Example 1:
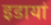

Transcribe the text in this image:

इडायां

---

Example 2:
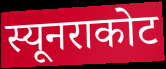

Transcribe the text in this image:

स्यूनराकोट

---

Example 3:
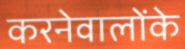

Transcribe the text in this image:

करनेवालोंके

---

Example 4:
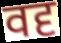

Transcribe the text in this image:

वदृ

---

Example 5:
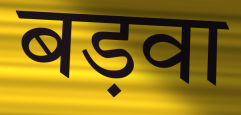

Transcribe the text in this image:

बड़वा